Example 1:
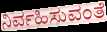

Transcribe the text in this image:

ನಿರ್ವಹಿಸುವಂತೆ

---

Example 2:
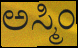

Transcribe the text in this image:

ಅಸ್ಮಿಂ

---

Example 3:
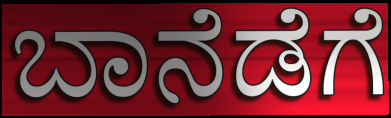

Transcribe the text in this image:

ಬಾನೆಡೆಗೆ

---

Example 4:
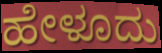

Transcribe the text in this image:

ಹೇಳೂದು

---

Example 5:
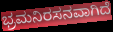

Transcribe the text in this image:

ಭ್ರಮನಿರಸನವಾಗಿದೆ